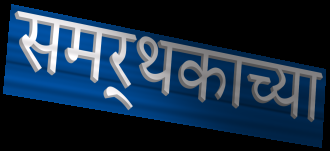
समर्थकाच्या